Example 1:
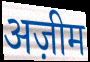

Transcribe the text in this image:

अज़ीम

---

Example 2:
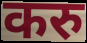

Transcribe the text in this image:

करु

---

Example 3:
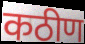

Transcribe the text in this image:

कठीण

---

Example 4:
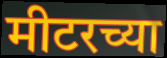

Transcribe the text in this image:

मीटरच्या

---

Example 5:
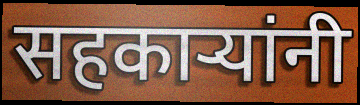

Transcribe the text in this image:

सहकाऱ्यांनी